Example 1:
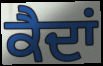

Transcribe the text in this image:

ਕੈਦਾਂ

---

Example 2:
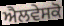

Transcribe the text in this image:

ਐਲਵੇਸਕੋ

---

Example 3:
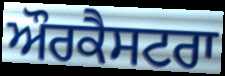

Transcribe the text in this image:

ਔਰਕੈਸਟਰਾ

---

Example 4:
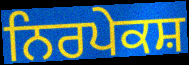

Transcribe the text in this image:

ਨਿਰਪੇਕਸ਼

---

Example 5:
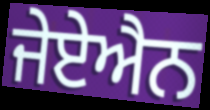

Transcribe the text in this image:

ਜੇਏਐਨ